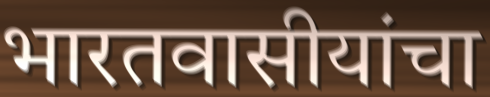
भारतवासीयांचा